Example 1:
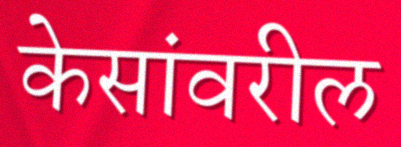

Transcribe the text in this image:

केसांवरील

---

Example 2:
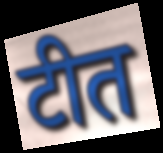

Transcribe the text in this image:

टीत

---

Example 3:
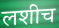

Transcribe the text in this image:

लशीच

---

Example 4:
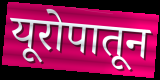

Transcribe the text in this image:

यूरोपातून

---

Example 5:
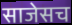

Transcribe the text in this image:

साजेसच